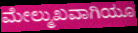
ಮೇಲ್ಮುಖವಾಗಿಯೂ